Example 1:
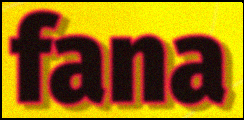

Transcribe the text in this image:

fana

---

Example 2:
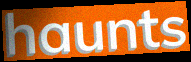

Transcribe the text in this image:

haunts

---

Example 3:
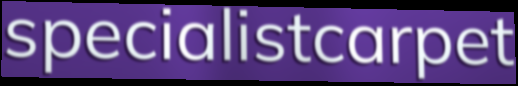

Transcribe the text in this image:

specialistcarpet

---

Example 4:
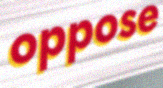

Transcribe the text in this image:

oppose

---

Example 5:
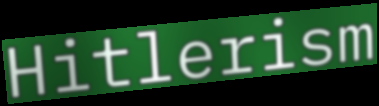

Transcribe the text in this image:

Hitlerism